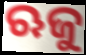
ଋଜୁ